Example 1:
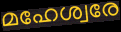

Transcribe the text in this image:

മഹേശ്വരേ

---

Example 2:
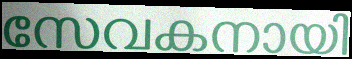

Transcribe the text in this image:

സേവകനായി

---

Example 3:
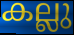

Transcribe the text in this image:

കല്ലു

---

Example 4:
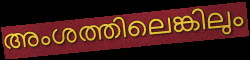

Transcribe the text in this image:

അംശത്തിലെങ്കിലും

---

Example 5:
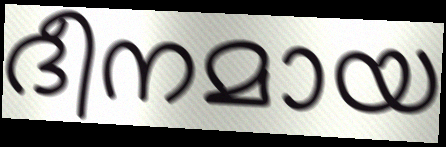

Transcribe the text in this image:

ദീനമായ